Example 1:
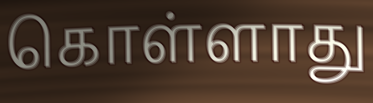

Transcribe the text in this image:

கொள்ளாது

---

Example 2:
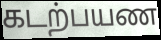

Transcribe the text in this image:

கடற்பயண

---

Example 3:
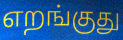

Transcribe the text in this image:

எறங்குது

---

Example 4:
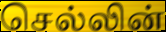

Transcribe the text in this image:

செல்லின்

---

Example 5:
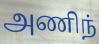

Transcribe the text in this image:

அணிந்